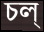
চল্